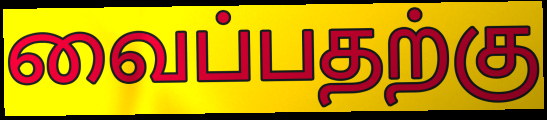
வைப்பதற்கு